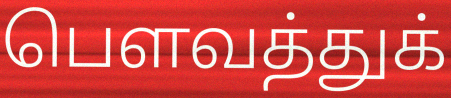
பௌவத்துக்